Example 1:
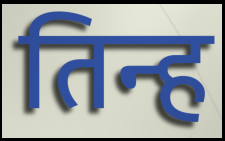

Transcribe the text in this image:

तिन्ह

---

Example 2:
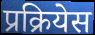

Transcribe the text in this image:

प्रक्रियेस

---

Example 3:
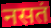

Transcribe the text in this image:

नसतं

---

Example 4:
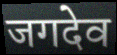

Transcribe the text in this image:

जगदेव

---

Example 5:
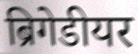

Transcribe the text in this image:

ब्रिगेडीयर